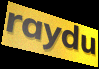
raydu